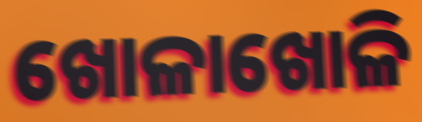
ଖୋଳାଖୋଳି